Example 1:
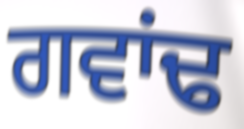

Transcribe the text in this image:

ਗਵਾਂਢ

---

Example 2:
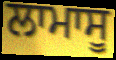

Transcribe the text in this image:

ਲਾਮਾਸੂ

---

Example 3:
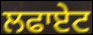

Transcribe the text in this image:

ਲਫਾਏਟ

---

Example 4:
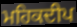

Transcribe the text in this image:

ਮਹਿਕਦੀਪ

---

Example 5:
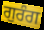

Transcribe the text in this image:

ਗੁਰੰਗ